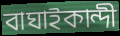
বাঘাইকান্দী